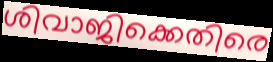
ശിവാജിക്കെതിരെ